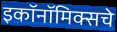
इकॉनॉमिक्सचे